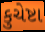
કુચેષ્ટા